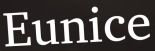
Eunice